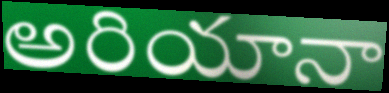
అరియానా